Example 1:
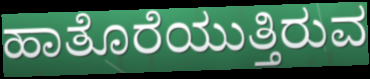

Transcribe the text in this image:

ಹಾತೊರೆಯುತ್ತಿರುವ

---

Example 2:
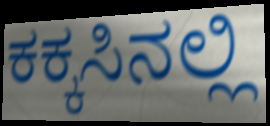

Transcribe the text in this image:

ಕಕ್ಕಸಿನಲ್ಲಿ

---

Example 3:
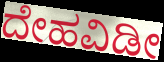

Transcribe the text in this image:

ದೇಹವಿಡೀ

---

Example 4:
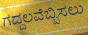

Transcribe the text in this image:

ಗದ್ದಲವೆಬ್ಬಿಸಲು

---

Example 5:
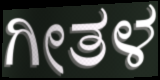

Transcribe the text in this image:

ಗೀತಳ